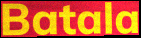
Batala